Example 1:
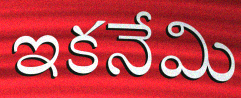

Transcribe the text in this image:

ఇకనేమి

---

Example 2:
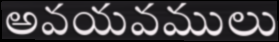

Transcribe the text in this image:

అవయవములు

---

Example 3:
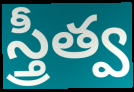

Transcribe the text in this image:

స్త్రీత్వ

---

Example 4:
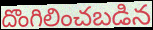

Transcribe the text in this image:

దొంగిలించబడిన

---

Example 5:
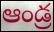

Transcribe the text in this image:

ఆండ్ర